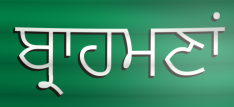
ਬ੍ਰਾਹਮਣਾਂ